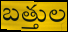
బత్తుల